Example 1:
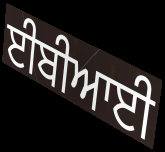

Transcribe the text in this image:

ਈਬੀਆਈ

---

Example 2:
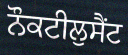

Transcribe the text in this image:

ਨੌਕਟੀਲੁਸੈਂਟ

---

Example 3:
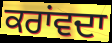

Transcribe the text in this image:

ਕਰਾਂਵਦਾ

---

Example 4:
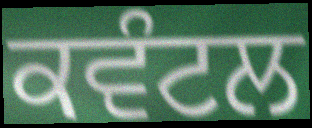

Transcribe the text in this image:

ਕਵੰਟਲ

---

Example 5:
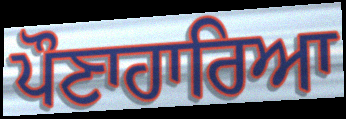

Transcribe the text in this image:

ਪੌਣਾਹਾਰਿਆ